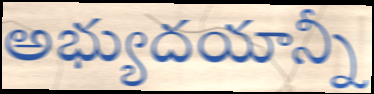
అభ్యుదయాన్నీ